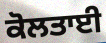
ਕੋਲਤਾਈ